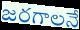
జరగాలనే